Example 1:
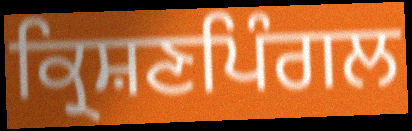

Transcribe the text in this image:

ਕ੍ਰਿਸ਼ਣਪਿੰਗਲ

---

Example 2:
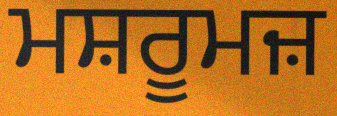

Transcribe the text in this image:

ਮਸ਼ਰੂਮਜ਼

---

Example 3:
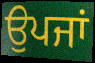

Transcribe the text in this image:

ਉਪਜਾਂ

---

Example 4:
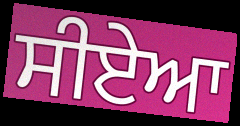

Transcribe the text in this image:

ਸੀਏਆ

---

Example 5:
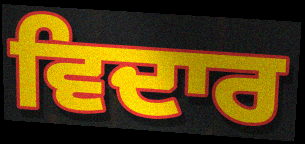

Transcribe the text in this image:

ਵਿਦਾਰ